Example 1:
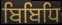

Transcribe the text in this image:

ਬਿਬਿਧਿ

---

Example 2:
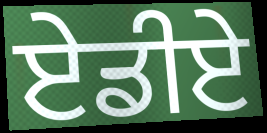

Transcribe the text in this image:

ਏਡੀਏ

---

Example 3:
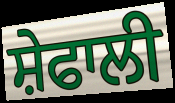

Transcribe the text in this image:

ਸ਼ੇਫਾਲੀ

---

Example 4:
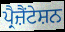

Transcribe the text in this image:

ਪ੍ਰੈਜ਼ੈਂਟੇਸ਼ਨ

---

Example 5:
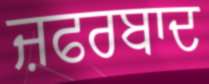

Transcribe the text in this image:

ਜ਼ਫਰਬਾਦ